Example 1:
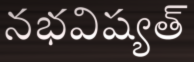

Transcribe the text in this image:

నభవిష్యత్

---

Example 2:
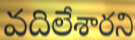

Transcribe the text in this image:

వదిలేశారని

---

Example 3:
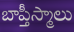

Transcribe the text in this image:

బాప్తీస్మాలు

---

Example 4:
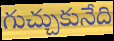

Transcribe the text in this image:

గుచ్చుకునేది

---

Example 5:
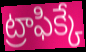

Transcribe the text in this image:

ట్రాఫిక్కే